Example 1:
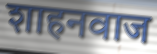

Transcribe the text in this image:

शाहनवाज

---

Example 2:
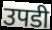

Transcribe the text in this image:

उपडी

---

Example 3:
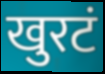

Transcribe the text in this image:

खुरटं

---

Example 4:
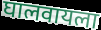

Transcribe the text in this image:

घालवायला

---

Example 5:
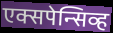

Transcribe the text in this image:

एक्सपेन्सिव्ह